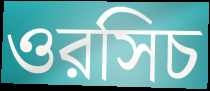
ওরসিচ